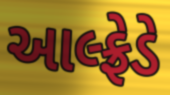
આલ્ફ્રેડે